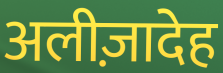
अलीज़ादेह